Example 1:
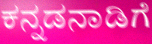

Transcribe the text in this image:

ಕನ್ನಡನಾಡಿಗೆ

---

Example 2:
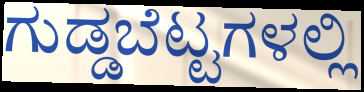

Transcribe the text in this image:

ಗುಡ್ಡಬೆಟ್ಟಗಳಲ್ಲಿ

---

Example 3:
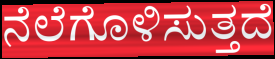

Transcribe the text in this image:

ನೆಲೆಗೊಳಿಸುತ್ತದೆ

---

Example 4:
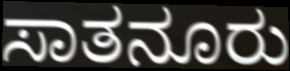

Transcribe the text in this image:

ಸಾತನೂರು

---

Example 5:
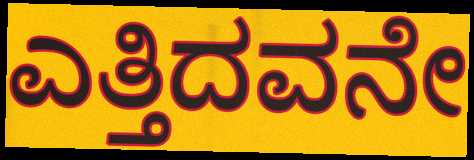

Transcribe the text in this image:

ಎತ್ತಿದವನೇ